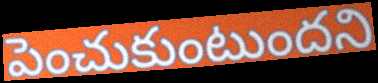
పెంచుకుంటుందని